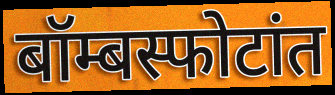
बॉम्बस्फोटांत